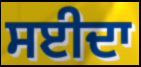
ਸਈਦਾ